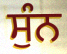
ਸੁੰਨ